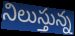
నిలుస్తున్న